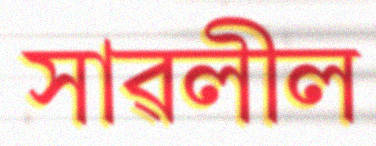
সাৱলীল